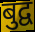
बुद्व